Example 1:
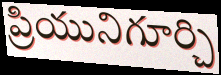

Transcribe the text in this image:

ప్రియునిగూర్చి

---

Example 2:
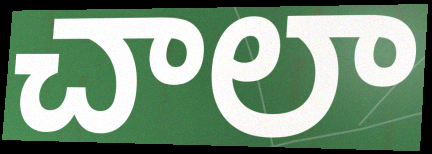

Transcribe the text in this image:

చాలా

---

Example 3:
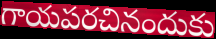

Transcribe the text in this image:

గాయపరచినందుకు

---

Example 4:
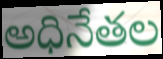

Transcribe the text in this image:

అధినేతల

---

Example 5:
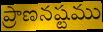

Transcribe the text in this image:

ప్రాణనష్టము